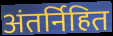
अंतर्निहित